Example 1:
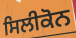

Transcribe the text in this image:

ਸਿਲੀਕੋਨ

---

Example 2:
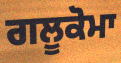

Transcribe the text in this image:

ਗਲੂਕੋਮਾ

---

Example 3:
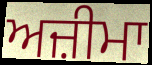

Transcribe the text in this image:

ਅਜ਼ੀਮਾ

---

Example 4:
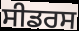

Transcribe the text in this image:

ਸੀਡਰਸ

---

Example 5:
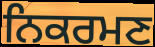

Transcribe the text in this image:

ਨਿਕਰਮਣ